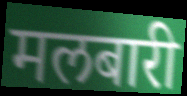
मलबारी